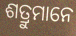
ଶତ୍ରୁମାନେ